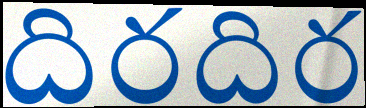
దిరదిర